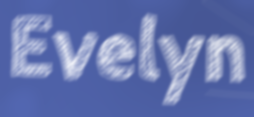
Evelyn